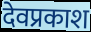
देवप्रकाश